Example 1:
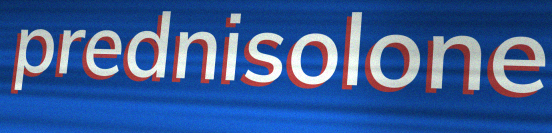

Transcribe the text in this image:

prednisolone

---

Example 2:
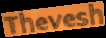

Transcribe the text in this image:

Thevesh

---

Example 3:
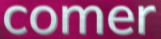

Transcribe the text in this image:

comer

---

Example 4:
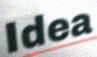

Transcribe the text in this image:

Idea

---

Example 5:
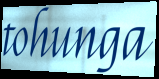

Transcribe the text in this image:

tohunga